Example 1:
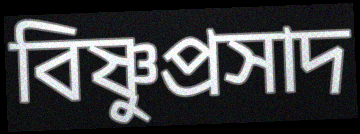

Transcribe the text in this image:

বিষ্ণুপ্রসাদ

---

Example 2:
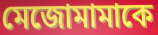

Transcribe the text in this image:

মেজোমামাকে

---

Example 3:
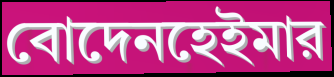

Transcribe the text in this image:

বোদেনহেইমার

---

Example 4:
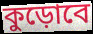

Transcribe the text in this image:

কুড়োবে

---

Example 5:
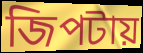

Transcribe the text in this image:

জিপটায়